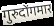
गुरुदोंगमार